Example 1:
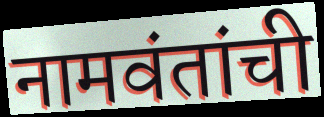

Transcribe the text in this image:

नामवंतांची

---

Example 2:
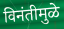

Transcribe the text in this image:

विनंतीमुळे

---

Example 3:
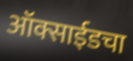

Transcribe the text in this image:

ऑक्साईडचा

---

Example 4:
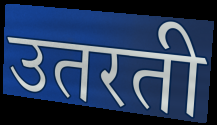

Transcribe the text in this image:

उतरती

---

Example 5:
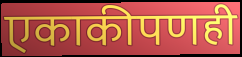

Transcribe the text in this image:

एकाकीपणही